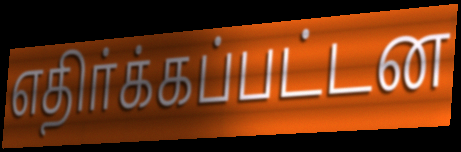
எதிர்க்கப்பட்டன